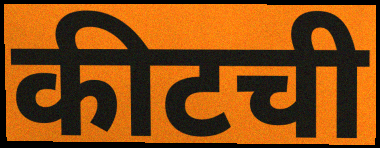
कीटची